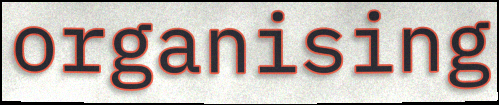
organising